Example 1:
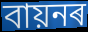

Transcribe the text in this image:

বায়নৰ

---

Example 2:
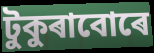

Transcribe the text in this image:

টুকুৰাবোৰে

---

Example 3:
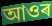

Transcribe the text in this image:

আওৰ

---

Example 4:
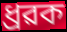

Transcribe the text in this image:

ধ্ৰৱক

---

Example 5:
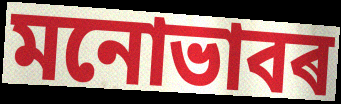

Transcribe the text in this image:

মনোভাবৰ